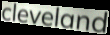
cleveland